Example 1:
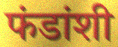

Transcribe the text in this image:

फंडांशी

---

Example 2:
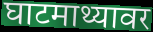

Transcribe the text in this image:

घाटमाथ्यावर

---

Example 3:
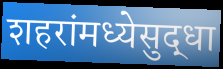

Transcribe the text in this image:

शहरांमध्येसुद्धा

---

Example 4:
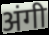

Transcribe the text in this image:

अंगी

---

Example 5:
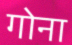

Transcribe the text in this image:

गोना